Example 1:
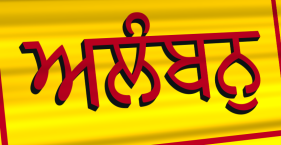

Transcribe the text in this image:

ਅਲੰਬਨੁ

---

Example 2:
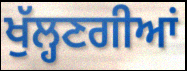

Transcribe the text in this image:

ਖੁੱਲ੍ਹਣਗੀਆਂ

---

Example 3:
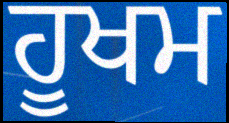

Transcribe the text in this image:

ਹੂਖਮ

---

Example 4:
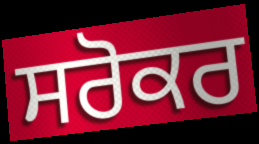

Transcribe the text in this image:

ਸਰੋਕਰ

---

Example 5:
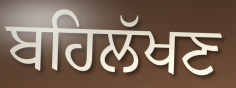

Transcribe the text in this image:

ਬਹਿਲੱਖਣ